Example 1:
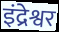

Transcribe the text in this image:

इंद्रेश्वर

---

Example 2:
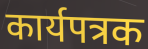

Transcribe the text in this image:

कार्यपत्रक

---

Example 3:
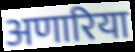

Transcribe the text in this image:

अणारिया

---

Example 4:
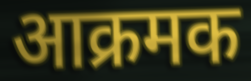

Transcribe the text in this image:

आक्रमक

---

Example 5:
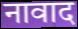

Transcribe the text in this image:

नावाद